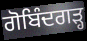
ਗੋਬਿੰਦਗੜ੍ਹ